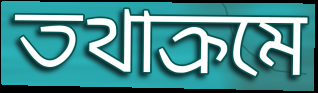
তথাক্ৰমে